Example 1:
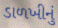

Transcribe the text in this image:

ડાળખીનું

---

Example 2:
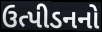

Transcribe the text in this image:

ઉત્પીડનનો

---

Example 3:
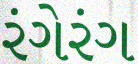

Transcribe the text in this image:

રંગેરંગ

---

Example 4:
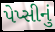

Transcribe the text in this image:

પેપ્સીનું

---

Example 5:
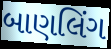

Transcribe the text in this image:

બાણલિંગ